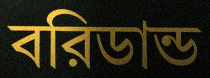
বরিডান্ড